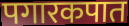
पगारकपात